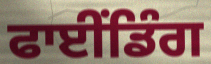
ਫਾਈਂਡਿੰਗ